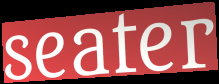
seater